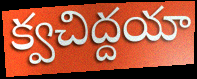
క్వచిద్దయా